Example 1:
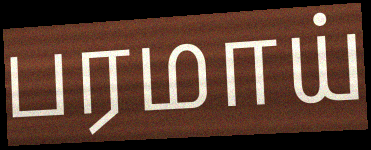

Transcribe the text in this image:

பரமாய்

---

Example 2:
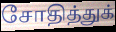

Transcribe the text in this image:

சோதித்துக்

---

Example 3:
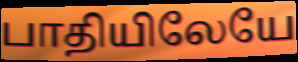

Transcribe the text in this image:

பாதியிலேயே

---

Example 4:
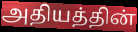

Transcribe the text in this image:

அதியத்தின்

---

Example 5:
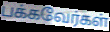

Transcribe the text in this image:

பக்கவேர்கள்